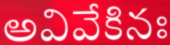
అవివేకినః